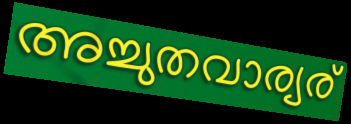
അച്ചുതവാര്യര്